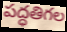
పద్ధతిగల